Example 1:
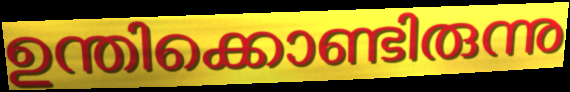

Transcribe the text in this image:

ഉന്തിക്കൊണ്ടിരുന്നു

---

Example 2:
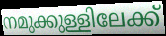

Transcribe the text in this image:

നമുക്കുള്ളിലേക്ക്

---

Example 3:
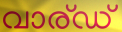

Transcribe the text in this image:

വാര്ഡ്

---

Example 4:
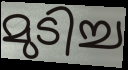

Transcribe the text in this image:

മുടിച്ച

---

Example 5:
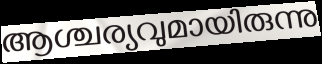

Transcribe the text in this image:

ആശ്ചര്യവുമായിരുന്നു